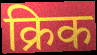
क्रिक